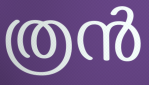
ത്രൻ